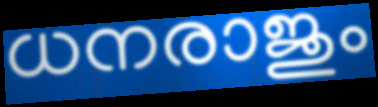
ധനരാജും